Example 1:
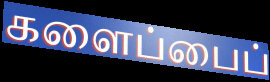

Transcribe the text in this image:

களைப்பைப்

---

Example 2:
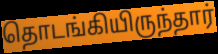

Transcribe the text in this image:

தொடங்கியிருந்தார்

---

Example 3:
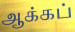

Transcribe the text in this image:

ஆக்கப்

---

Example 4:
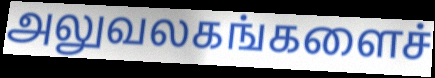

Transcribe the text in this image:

அலுவலகங்களைச்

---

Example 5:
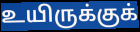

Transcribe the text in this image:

உயிருக்குக்